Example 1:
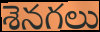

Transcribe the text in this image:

శెనగలు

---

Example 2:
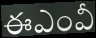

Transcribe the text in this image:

ఈఎంవీ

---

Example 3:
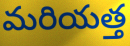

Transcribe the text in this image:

మరియత్త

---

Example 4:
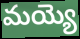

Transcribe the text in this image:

మయ్యె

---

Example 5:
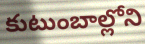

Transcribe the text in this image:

కుటుంబాల్లోని